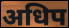
अधिप